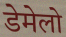
डेमेलो